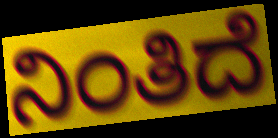
ನಿಂತಿದೆ